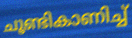
ചൂണ്ടികാണിച്ച്